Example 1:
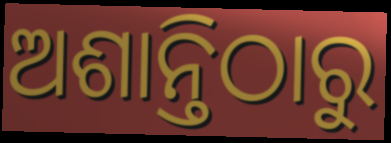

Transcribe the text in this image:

ଅଶାନ୍ତିଠାରୁ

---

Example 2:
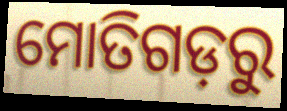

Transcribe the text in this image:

ମୋତିଗଡ଼ରୁ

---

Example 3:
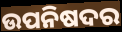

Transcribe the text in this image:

ଉପନିଷଦର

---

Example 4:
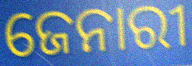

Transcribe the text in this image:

ଜେନାରୀ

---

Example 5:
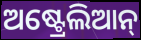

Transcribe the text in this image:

ଅଷ୍ଟ୍ରେଲିଆନ୍